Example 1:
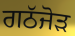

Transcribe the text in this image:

ਗਠੱਜੋੜ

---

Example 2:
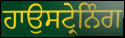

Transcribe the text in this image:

ਹਾਉਸਟ੍ਰੇਨਿੰਗ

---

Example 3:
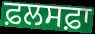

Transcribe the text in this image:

ਫ਼ਲਸਫ਼ਾ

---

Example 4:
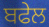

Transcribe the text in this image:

ਬਫੇਲ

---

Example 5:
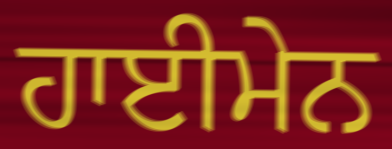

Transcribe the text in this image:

ਹਾਈਮੇਨ